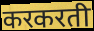
करकरती